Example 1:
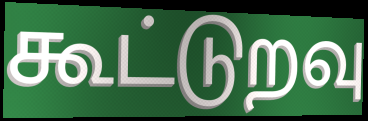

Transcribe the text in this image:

கூட்டுறவு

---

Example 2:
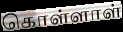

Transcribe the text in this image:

கொள்ளாள்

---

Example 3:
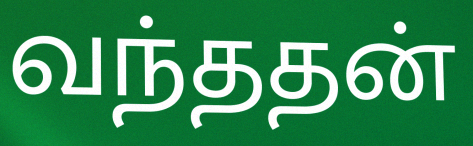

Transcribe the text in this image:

வந்ததன்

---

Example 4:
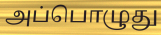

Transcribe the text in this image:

அப்பொழுது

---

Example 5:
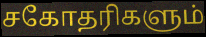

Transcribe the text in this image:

சகோதரிகளும்